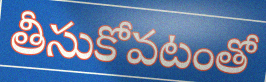
తీసుకోవటంతో